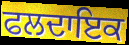
ਫਲਦਾਇਕ